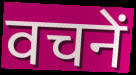
वचनें